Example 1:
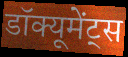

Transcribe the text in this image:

डॉक्यूमेंट्स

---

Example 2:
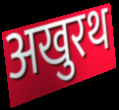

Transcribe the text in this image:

अखुरथ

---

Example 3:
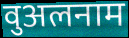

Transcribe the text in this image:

वुअलनाम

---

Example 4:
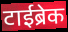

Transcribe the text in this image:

टाईब्रेक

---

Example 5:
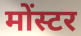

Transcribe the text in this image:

मोंस्टर